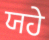
ਯਹੇ